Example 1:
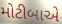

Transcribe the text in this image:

મોટીબાએ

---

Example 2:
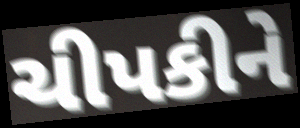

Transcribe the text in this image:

ચીપકીને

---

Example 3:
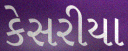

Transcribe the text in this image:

કેસરીયા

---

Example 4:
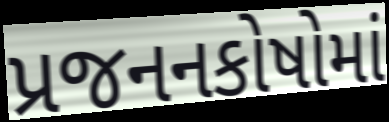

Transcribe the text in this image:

પ્રજનનકોષોમાં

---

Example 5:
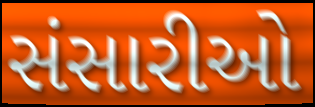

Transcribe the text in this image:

સંસારીઓ